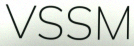
VSSM